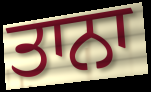
ਤਾਨਾ